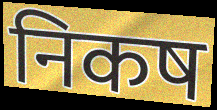
निकष